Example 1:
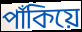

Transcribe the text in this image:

পাঁকিয়ে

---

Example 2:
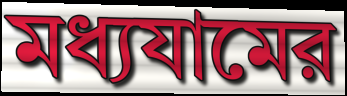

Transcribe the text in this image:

মধ্যযামের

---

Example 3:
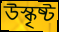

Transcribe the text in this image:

উস্কৃষ্ট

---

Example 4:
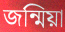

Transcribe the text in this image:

জন্মিয়া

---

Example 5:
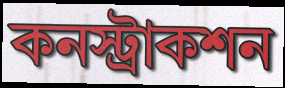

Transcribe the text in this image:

কনস্ট্রাকশন